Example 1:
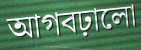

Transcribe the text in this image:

আগবঢ়ালো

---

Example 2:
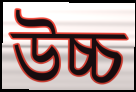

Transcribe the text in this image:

উচ্চ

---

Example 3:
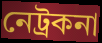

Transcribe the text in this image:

নেট্ৰকনা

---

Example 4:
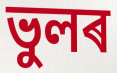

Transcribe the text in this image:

ভুলৰ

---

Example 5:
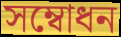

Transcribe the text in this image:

সম্বোধন